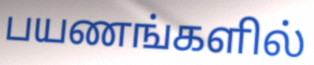
பயணங்களில்